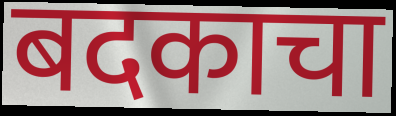
बदकाचा